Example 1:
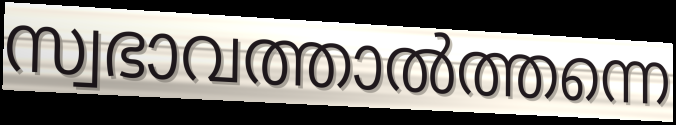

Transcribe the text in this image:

സ്വഭാവത്താൽത്തന്നെ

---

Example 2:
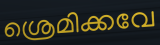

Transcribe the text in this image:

ശ്രെമിക്കവേ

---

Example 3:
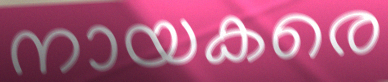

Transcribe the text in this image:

നായകരെ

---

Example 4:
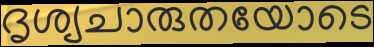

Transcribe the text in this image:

ദൃശ്യചാരുതയോടെ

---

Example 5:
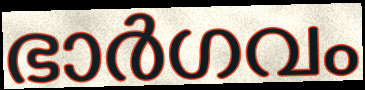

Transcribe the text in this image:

ഭാർഗവം